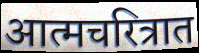
आत्मचरित्रात